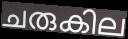
ചരുകില